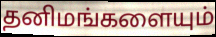
தனிமங்களையும்